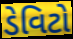
ડેવિટો